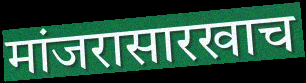
मांजरासारखाच